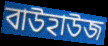
বাউহাউজ